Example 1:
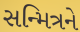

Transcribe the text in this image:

સન્મિત્રને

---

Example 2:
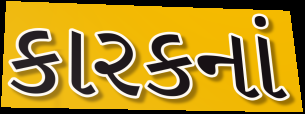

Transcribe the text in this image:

કારકનાં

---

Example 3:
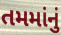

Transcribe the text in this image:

તમમાંનું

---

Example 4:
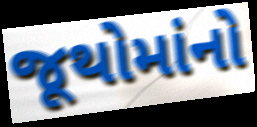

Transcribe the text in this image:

જૂથોમાંનો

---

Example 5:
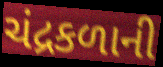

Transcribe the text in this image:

ચંદ્રકળાની